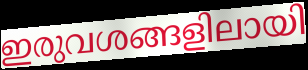
ഇരുവശങ്ങളിലായി